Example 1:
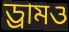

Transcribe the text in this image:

ড্রামও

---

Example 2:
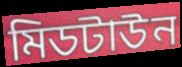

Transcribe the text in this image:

মিডটাউন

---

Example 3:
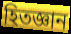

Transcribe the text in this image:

হিতজ্ঞান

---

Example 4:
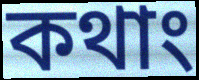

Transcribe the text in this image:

কথাং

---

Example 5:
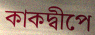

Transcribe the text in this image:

কাকদ্বীপে